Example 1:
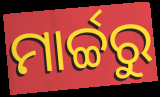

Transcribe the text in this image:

ମାର୍ଚ୍ଚରୁ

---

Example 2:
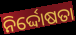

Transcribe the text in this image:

ନିର୍ଦ୍ଦୋଷତା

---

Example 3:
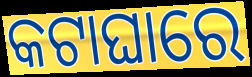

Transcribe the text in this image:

କଟାଘାରେ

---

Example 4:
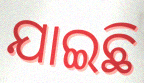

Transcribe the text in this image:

ଯାଇଛି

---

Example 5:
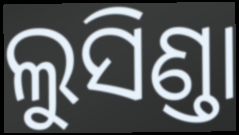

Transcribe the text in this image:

ଲୁସିଣ୍ଡା